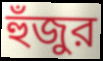
হুঁজুর